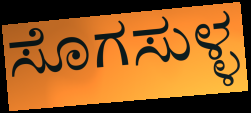
ಸೊಗಸುಳ್ಳ